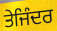
ਤੇਜਿੰਦਰ